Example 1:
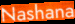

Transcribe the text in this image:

Nashana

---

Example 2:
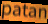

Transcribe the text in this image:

patan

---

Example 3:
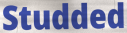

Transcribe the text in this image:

Studded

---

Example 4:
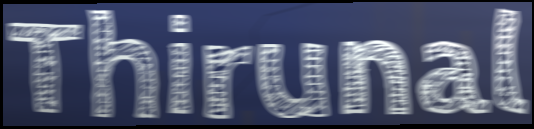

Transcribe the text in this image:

Thirunal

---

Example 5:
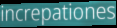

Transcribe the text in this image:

increpationes